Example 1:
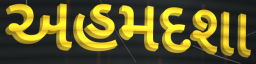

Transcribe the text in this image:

અહમદશા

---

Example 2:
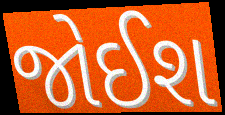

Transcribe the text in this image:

જોઈશ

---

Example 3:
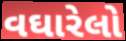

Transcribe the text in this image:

વઘારેલો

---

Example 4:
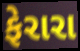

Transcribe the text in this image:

ફેરારા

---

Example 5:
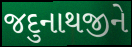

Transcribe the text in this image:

જદુનાથજીને